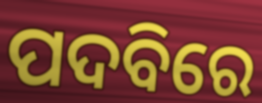
ପଦବିରେ